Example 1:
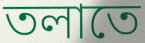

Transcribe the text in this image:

তলাতে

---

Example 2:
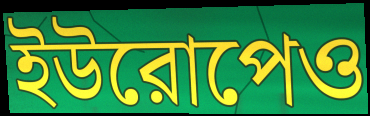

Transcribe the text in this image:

ইউরোপেও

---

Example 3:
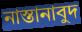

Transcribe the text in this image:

নাস্তানাবুদ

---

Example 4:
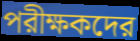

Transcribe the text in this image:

পরীক্ষকদের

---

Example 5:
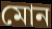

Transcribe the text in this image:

মোন